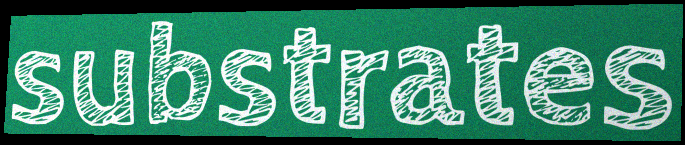
substrates